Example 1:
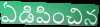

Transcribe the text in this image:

ఏడిపించిన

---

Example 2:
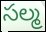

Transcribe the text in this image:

సల్మ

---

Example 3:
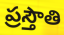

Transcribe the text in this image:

ప్రస్తౌతి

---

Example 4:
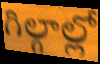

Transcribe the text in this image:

గిల్గాల్లో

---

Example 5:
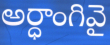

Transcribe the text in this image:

అర్ధాంగివై